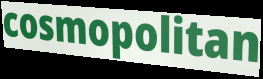
cosmopolitan